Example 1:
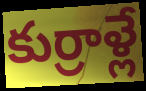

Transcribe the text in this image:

కుర్రాళ్లే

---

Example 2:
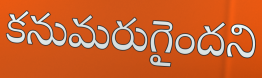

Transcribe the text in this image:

కనుమరుగైందని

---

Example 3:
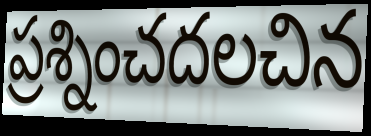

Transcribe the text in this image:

ప్రశ్నించదలచిన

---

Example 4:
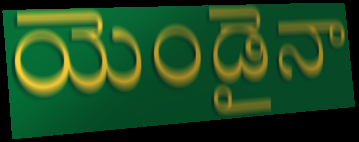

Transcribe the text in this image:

యెండైనా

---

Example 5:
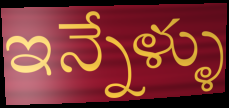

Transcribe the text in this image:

ఇన్నేళ్ళు